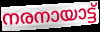
നരനായാട്ട്